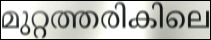
മുറ്റത്തരികിലെ